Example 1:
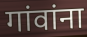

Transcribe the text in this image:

गांवांना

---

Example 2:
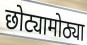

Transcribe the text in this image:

छोट्यामोठ्या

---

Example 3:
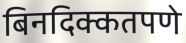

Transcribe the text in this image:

बिनदिक्कतपणे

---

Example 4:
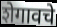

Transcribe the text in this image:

शेगावचे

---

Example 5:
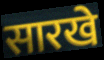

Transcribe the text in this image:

सारखे